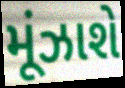
મૂંઝાશે